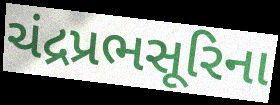
ચંદ્રપ્રભસૂરિના